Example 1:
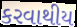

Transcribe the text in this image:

કરવાથીય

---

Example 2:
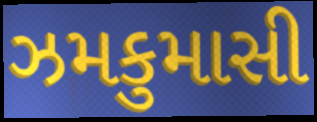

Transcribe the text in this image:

ઝમકુમાસી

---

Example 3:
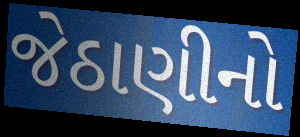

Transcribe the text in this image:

જેઠાણીનો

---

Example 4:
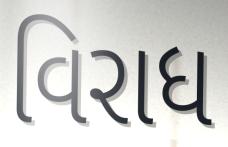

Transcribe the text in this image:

વિરાધ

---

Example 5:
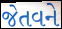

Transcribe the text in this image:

જેતવને